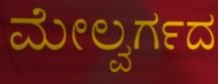
ಮೇಲ್ವರ್ಗದ